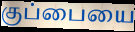
குப்பையை